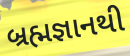
બ્રહ્મજ્ઞાનથી